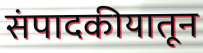
संपादकीयातून